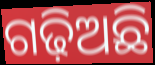
ଗଢ଼ିଅଛି